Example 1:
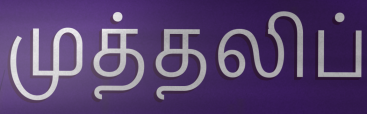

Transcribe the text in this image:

முத்தலிப்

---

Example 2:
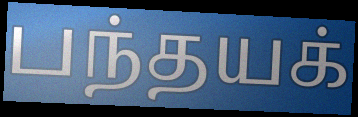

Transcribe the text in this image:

பந்தயக்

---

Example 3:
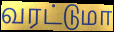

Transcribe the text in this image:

வரட்டுமா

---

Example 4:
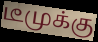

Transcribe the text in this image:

டீமுக்கு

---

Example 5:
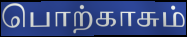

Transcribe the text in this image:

பொற்காசும்